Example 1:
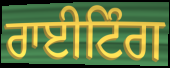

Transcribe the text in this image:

ਰਾਈਟਿੰਗ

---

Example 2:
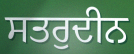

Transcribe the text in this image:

ਸਤਰੁਦੀਨ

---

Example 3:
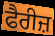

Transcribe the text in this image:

ਫੈਰੀਜ਼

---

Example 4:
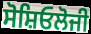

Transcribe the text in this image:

ਸੋਸ਼ਿਓਲੋਜੀ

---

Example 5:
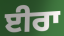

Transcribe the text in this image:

ਈਰਾ